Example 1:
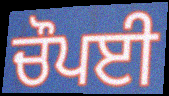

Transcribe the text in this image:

ਚੌਪਈ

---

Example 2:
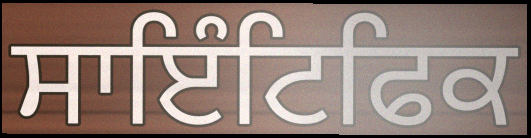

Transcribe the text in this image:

ਸਾਇੰਟਿਫਿਕ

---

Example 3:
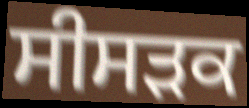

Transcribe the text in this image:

ਸੀਸੜਕ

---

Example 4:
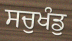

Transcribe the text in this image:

ਸਚੁਖੰਡੁ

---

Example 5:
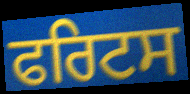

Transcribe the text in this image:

ਫਰਿਟਸ